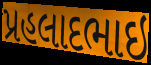
પ્રહલાદભાઇ